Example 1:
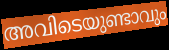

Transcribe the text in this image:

അവിടെയുണ്ടാവും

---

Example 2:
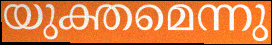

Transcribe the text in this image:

യുക്തമെന്നു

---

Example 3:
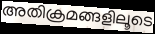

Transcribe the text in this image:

അതിക്രമങ്ങളിലൂടെ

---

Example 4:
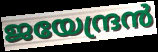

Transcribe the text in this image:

ജയേന്ദ്രൻ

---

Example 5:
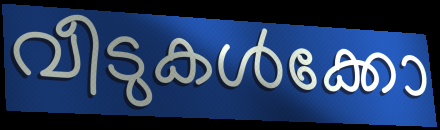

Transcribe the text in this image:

വീടുകൾക്കോ